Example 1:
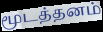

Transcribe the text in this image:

மூடத்தனம்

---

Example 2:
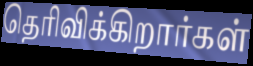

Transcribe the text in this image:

தெரிவிக்கிறார்கள்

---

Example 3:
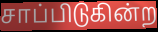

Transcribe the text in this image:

சாப்பிடுகின்ற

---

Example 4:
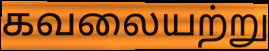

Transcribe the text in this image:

கவலையற்று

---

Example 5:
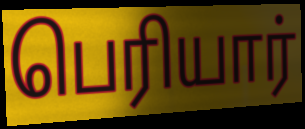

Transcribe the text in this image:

பெரியார்